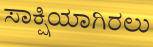
ಸಾಕ್ಷಿಯಾಗಿರಲು